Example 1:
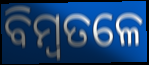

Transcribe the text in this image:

ବିମ୍ବତଳେ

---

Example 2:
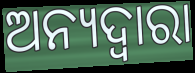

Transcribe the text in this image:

ଅନ୍ୟଦ୍ୱାରା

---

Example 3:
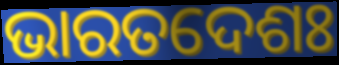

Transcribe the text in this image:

ଭାରତଦେଶଃ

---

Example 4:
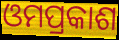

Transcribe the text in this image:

ଓମପ୍ରକାଶ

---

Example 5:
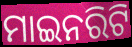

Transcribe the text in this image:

ମାଇନରିଟି